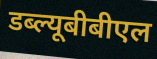
डब्ल्यूबीबीएल